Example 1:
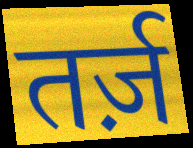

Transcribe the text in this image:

तर्ज़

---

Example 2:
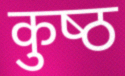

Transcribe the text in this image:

कुष्‍ठ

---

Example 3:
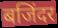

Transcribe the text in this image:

बजिंदर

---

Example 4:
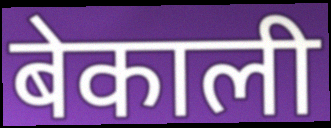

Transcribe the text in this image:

बेकाली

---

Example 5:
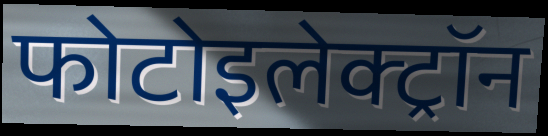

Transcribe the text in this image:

फोटोइलेक्ट्रॉन